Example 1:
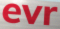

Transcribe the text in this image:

evr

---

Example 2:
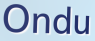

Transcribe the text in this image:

Ondu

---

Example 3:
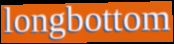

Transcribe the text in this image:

longbottom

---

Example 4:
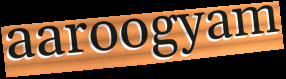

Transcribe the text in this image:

aaroogyam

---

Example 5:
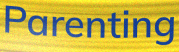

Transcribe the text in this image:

Parenting